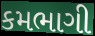
કમભાગી